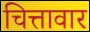
चित्तावार